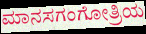
ಮಾನಸಗಂಗೋತ್ರಿಯ